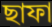
ছাফা